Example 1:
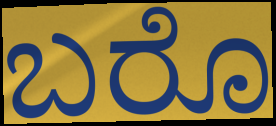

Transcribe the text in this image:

ಬರೊ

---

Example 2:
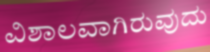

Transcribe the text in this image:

ವಿಶಾಲವಾಗಿರುವುದು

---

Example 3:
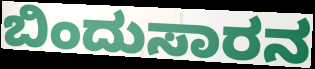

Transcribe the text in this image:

ಬಿಂದುಸಾರನ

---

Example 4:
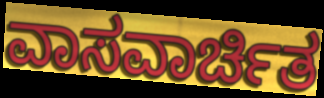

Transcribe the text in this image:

ವಾಸವಾರ್ಚಿತ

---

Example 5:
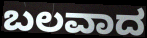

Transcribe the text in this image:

ಬಲವಾದ